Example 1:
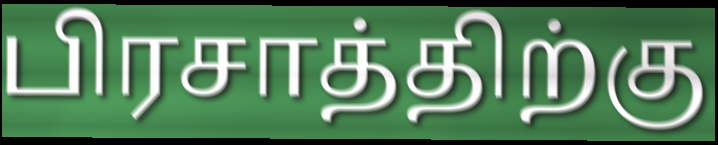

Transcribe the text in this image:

பிரசாத்திற்கு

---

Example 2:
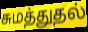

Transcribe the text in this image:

சுமத்துதல்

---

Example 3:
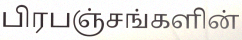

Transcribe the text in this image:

பிரபஞ்சங்களின்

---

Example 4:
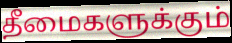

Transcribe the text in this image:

தீமைகளுக்கும்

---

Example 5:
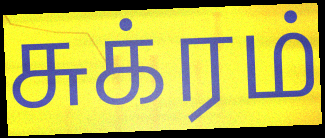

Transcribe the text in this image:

சுக்ரம்